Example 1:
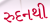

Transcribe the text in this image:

રુદનથી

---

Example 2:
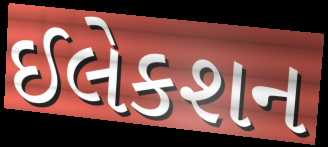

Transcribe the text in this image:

ઈલેકશન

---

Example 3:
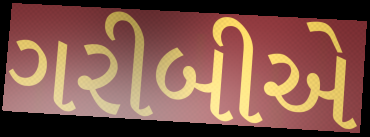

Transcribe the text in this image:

ગરીબીએ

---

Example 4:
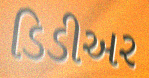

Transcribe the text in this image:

ડિડીઅર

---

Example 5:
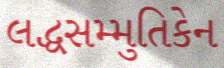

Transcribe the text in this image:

લદ્ધસમ્મુતિકેન